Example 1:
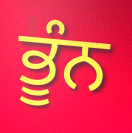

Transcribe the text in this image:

ਭੂੰਨ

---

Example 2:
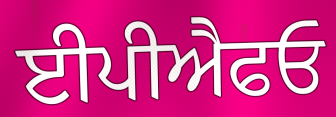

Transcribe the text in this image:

ਈਪੀਐਫਓ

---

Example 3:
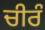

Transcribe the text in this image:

ਚੀਰੰ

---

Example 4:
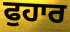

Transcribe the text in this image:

ਫੁਹਾਰ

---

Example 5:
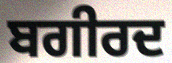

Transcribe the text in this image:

ਬਗੀਰਦ